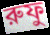
রুফু